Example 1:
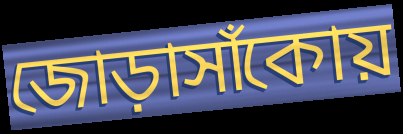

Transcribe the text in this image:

জোড়াসাঁকোয়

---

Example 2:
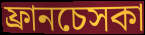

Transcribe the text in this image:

ফ্রানচেসকা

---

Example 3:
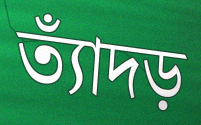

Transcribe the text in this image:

ত্যাঁদড়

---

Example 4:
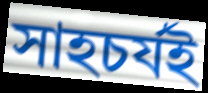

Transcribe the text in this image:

সাহচর্যই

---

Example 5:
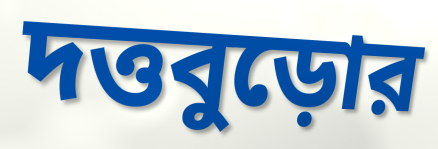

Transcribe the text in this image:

দত্তবুড়োর